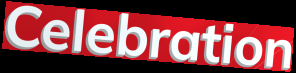
Celebration